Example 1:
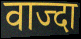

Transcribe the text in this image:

वाज्दा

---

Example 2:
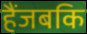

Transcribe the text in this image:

हैंजबकि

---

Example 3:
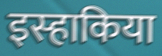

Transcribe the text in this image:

इस्हाकिया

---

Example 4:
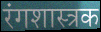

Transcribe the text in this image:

रंगशास्त्रक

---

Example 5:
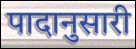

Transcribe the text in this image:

पादानुसारी